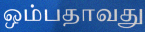
ஒம்பதாவது